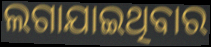
ଲଗାଯାଇଥିବାର